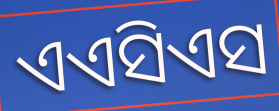
ଏଏସିଏସ